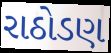
રાઠોડણ